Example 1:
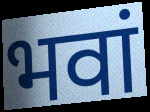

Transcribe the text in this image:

भवां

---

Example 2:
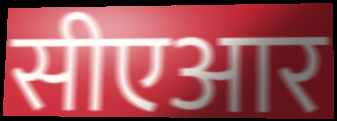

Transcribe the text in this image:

सीएआर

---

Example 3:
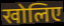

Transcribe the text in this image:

खोलिए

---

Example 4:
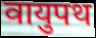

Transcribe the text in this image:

वायुपथ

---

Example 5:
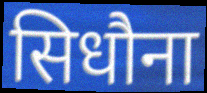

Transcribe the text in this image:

सिधौना